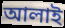
আলাই